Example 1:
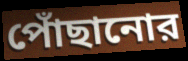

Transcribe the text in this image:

পোঁছানোর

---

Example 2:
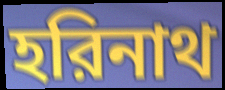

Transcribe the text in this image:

হরিনাথ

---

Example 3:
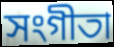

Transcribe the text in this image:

সংগীতা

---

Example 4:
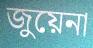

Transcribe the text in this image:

জুয়েনা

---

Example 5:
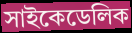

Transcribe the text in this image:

সাইকেডেলিক